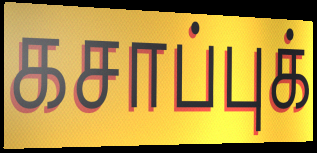
கசாப்புக்